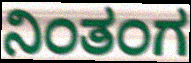
ನಿಂತಂಗ